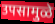
उपसामुळे